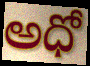
అధో